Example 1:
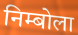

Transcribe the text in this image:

निम्बोला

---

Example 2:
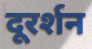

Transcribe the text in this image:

दूरर्शन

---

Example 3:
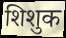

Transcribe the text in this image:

शिशुक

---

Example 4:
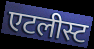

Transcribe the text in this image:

एटलीस्ट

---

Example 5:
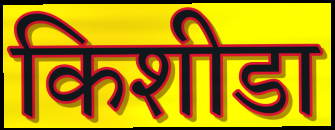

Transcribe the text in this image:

किशीडा